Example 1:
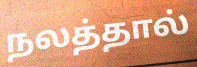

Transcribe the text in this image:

நலத்தால்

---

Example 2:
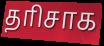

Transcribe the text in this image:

தரிசாக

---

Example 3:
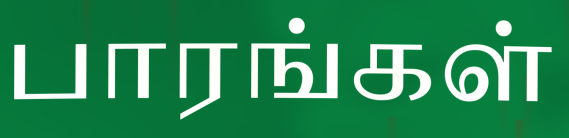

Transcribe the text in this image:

பாரங்கள்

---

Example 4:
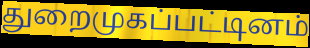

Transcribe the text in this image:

துறைமுகப்பட்டினம்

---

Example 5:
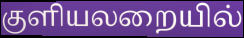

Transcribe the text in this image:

குளியலறையில்